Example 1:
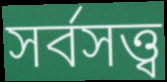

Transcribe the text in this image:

সর্বসত্ত্ব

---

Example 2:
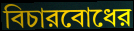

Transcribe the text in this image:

বিচারবোধের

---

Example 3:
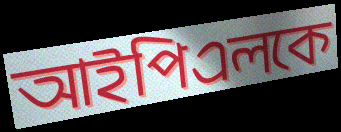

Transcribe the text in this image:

আইপিএলকে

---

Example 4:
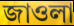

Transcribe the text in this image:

জাওলা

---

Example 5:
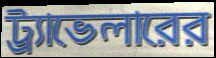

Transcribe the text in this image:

ট্র্যাভেলারের